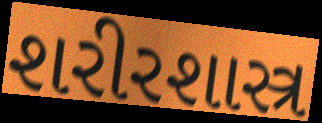
શરીરશાસ્ત્ર